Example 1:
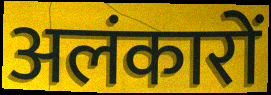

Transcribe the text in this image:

अलंकारों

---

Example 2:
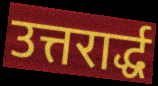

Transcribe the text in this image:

उत्तरार्द्ध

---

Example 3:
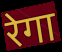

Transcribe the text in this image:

रेगा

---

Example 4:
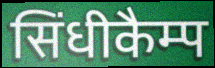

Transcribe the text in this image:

सिंधीकैम्प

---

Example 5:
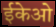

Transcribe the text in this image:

ईकेओ